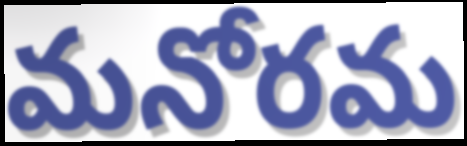
మనోరమ